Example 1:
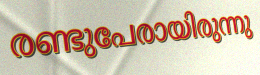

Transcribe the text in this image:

രണ്ടുപേരായിരുന്നു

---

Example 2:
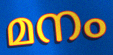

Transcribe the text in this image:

മനം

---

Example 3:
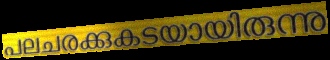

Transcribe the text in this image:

പലചരക്കുകടയായിരുന്നു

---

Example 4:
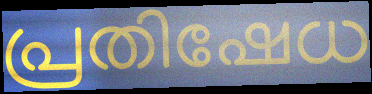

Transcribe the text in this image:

പ്രതിഷേധ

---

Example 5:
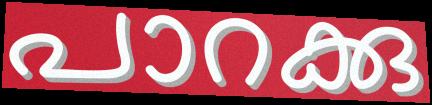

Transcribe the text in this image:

പാറക്കു